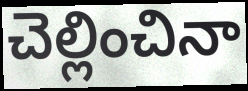
చెల్లించినా